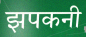
झपकनी